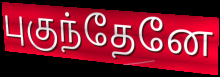
புகுந்தேனே